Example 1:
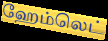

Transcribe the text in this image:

ஹேம்லெட்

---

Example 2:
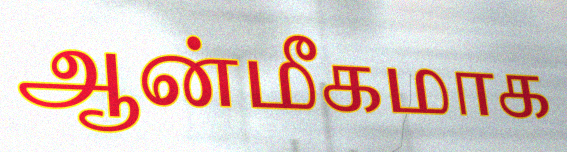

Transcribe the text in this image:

ஆன்மீகமாக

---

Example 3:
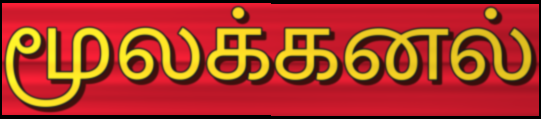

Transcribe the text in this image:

மூலக்கனல்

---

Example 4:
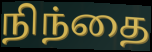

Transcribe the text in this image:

நிந்தை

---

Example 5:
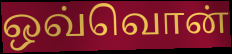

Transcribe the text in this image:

ஒவ்வொன்